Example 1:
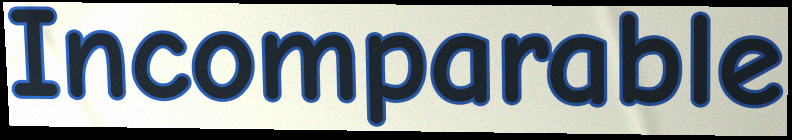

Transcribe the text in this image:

Incomparable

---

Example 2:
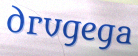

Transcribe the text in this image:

drugega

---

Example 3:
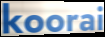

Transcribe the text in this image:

koorai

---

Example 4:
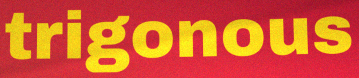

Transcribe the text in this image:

trigonous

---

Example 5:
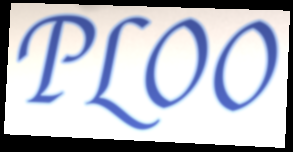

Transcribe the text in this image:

PLOO